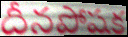
దీనపోషక